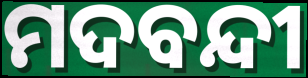
ମଦବନ୍ଦୀ